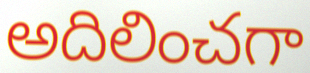
అదిలించగా